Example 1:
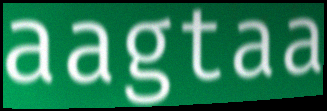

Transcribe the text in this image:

aagtaa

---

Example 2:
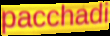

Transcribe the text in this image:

pacchadi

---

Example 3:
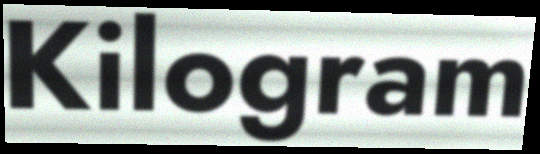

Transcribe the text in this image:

Kilogram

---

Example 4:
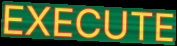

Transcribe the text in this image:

EXECUTE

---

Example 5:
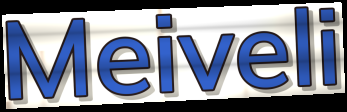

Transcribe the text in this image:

Meiveli